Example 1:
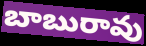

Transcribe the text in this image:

బాబురావు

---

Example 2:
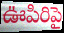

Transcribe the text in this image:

ఊపిరిపై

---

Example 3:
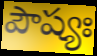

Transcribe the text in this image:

పౌష్యః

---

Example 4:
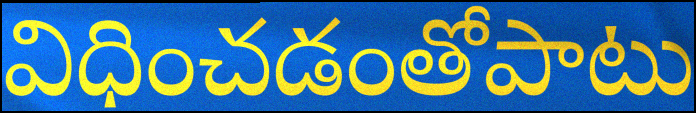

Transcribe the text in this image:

విధించడంతోపాటు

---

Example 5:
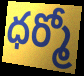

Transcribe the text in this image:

ధర్మో